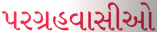
પરગ્રહવાસીઓ